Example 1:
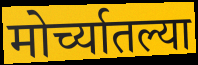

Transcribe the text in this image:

मोर्च्यातल्या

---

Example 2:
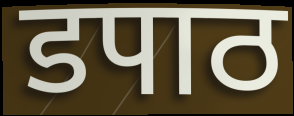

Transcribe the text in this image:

डपाठ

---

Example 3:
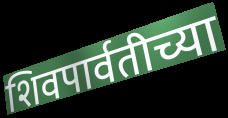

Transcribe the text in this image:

शिवपार्वतीच्या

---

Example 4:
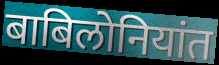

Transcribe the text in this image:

बाबिलोनियांत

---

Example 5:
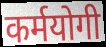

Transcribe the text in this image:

कर्मयोगी